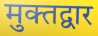
मुक्तद्वार